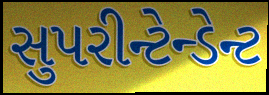
સુપરીન્ટેન્ડેન્ટ